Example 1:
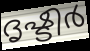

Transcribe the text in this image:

ദൃഷ്ടിർ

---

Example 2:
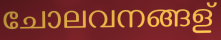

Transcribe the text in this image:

ചോലവനങ്ങള്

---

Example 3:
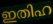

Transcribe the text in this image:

ഇതിഹ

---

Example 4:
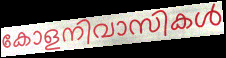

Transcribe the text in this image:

കോളനിവാസികൾ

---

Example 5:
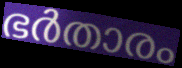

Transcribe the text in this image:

ഭർതാരം